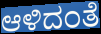
ಆಳಿದಂತೆ